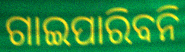
ଗାଇପାରିବନି